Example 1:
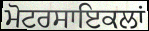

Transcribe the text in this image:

ਮੋਟਰਸਾਇਕਲਾਂ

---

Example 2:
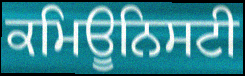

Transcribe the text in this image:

ਕਮਿਊਨਿਸਟੀ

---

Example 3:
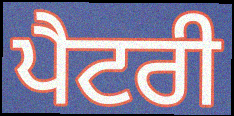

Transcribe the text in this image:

ਪੈਟਰੀ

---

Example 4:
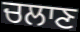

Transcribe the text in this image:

ਚਲਾਣ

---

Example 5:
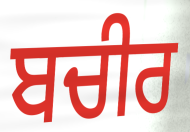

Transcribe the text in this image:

ਬਚੀਰ